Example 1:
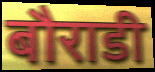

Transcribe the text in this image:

बौराडी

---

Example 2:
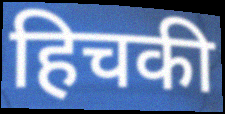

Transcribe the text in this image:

हिचकी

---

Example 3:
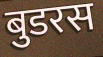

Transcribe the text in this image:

बुडरस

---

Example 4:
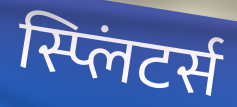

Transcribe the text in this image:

स्प्लिंटर्स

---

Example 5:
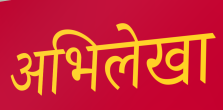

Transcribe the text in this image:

अभिलेखा